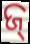
ଜ୍